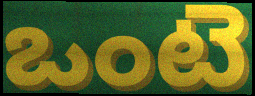
ఒంటె